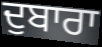
ਦੁਬਾਰਾ